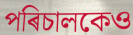
পৰিচালকেও